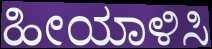
ಹೀಯಾಳಿಸಿ